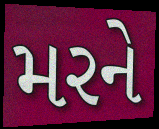
મરને